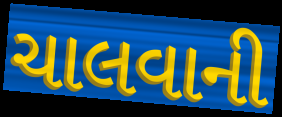
ચાલવાની